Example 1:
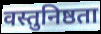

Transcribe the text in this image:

वस्तुनिष्ठता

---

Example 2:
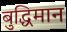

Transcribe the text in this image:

बुद्धिमान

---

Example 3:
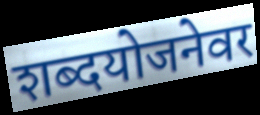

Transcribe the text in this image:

शब्दयोजनेवर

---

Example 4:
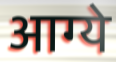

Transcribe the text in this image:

आग्ये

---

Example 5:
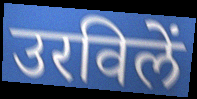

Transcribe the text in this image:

उरविलें